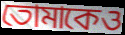
তোমাকেও